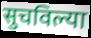
सुचविल्या